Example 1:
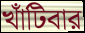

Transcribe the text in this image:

খাঁটিবার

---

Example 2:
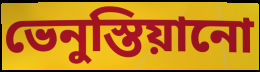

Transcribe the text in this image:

ভেনুস্তিয়ানো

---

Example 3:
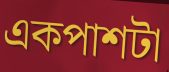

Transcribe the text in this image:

একপাশটা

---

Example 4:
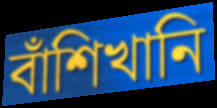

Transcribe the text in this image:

বাঁশিখানি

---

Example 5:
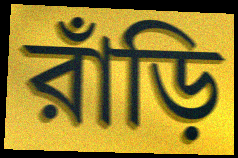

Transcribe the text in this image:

রাঁড়ি